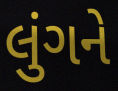
લુંગને